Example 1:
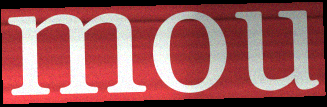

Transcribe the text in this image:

mou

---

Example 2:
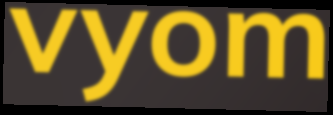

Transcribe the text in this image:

vyom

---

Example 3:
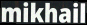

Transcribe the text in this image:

mikhail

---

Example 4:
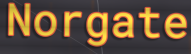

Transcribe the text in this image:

Norgate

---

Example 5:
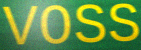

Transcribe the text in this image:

VOSS